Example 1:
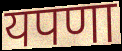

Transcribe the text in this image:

यपणा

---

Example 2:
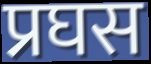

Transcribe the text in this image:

प्रघस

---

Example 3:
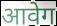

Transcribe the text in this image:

आवेग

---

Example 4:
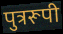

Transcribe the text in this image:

पुत्ररूपी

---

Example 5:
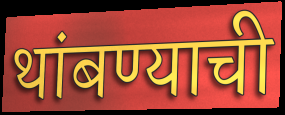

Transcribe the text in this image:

थांबण्याची